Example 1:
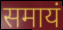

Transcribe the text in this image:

समायं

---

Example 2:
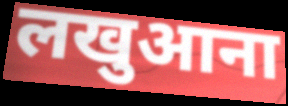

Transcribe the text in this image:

लखुआना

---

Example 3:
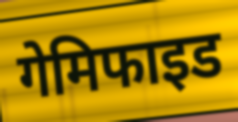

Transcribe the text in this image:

गेमिफाइड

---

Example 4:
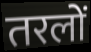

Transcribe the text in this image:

तरलों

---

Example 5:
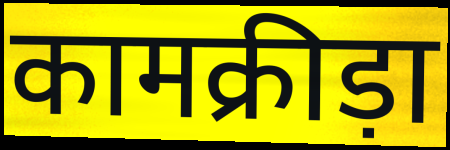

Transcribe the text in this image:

कामक्रीड़ा